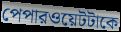
পেপারওয়েটটাকে